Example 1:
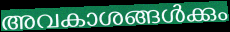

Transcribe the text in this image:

അവകാശങ്ങൾക്കും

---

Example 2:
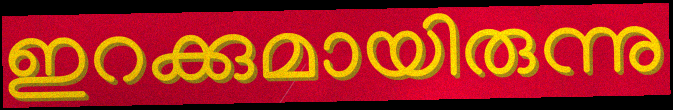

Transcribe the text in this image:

ഇറക്കുമായിരുന്നു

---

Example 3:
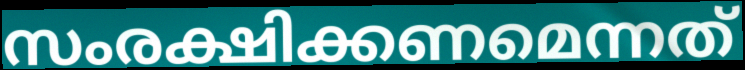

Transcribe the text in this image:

സംരക്ഷിക്കണമെന്നത്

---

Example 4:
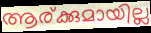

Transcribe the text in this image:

ആര്ക്കുമായില്ല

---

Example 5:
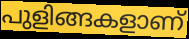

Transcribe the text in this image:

പുളിങ്ങകളാണ്